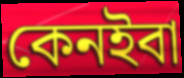
কেনইবা